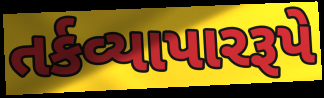
તર્કવ્યાપારરૂપે